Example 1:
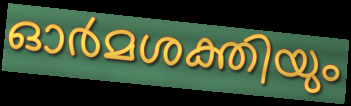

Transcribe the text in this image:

ഓർമശക്തിയും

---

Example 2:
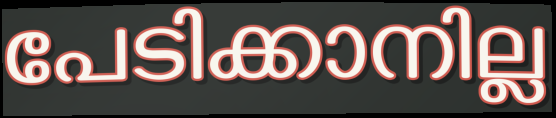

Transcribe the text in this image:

പേടിക്കാനില്ല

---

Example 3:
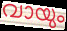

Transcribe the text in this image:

വായും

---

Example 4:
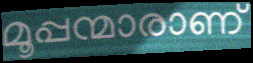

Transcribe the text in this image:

മൂപ്പന്മാരാണ്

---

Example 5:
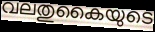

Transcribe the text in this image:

വലതുകൈയുടെ